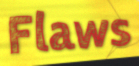
Flaws